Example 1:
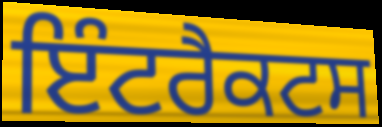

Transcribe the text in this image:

ਇੰਟਰੈਕਟਸ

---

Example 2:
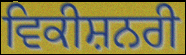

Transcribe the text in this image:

ਵਿਕੀਸ਼ਨਰੀ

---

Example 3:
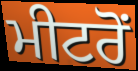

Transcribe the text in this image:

ਮੀਟਰੋਂ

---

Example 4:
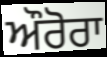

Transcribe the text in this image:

ਔਰੋਰਾ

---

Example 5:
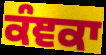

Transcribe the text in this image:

ਕੰਞਕਾ